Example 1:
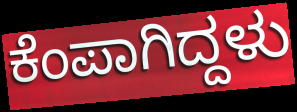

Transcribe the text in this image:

ಕೆಂಪಾಗಿದ್ದಳು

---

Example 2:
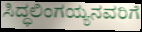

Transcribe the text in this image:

ಸಿದ್ಧಲಿಂಗಯ್ಯನವರಿಗೆ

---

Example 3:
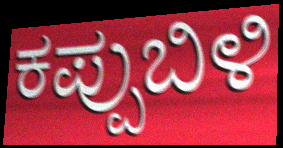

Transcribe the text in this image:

ಕಪ್ಪುಬಿಳಿ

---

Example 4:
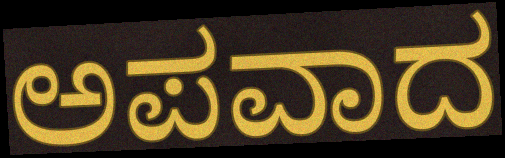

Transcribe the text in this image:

ಅಪವಾದ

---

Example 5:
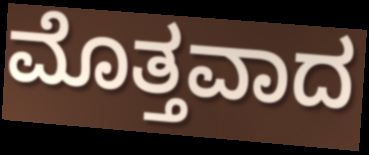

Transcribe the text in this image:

ಮೊತ್ತವಾದ